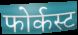
फोर्कस्ट